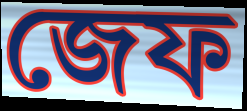
জেফ